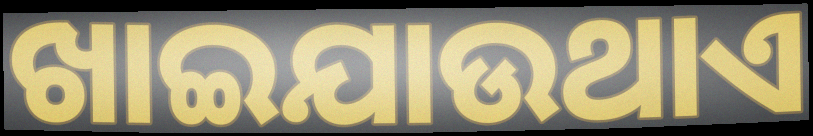
ଖାଇଯାଉଥାଏ